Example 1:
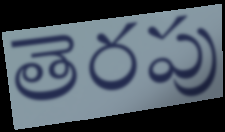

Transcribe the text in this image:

తెరపు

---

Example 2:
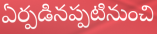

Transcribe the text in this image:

ఏర్పడినప్పటినుంచి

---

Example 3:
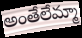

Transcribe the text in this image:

అంతేలేమ్మా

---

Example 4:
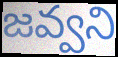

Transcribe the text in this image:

జవ్వని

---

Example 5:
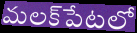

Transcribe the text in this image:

మలక్‌పేటలో